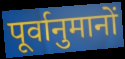
पूर्वानुमानों